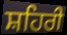
ਸ਼ਹਿਰੀ